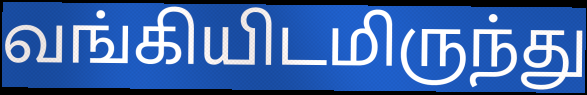
வங்கியிடமிருந்து